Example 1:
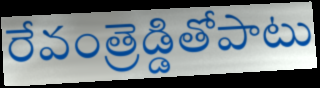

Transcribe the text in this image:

రేవంత్రెడ్డితోపాటు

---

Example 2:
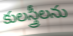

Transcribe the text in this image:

కులస్త్రీలను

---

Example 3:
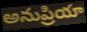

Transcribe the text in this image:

అనుప్రియా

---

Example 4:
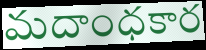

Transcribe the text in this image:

మదాంధకార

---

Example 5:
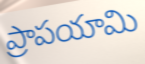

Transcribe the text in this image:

ప్రాపయామి